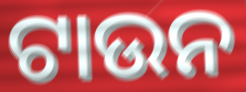
ଟାଉନ